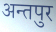
अन्तपुर